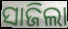
ସାଜିଲା